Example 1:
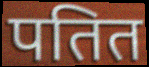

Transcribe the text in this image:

पतित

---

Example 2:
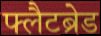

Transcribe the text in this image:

फ्लैटब्रेड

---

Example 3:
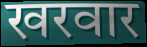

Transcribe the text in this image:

खरवार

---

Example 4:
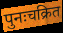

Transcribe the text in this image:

पुनःचक्रित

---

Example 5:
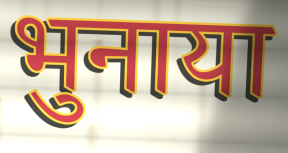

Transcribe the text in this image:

भुनाया